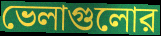
ভেলাগুলোর